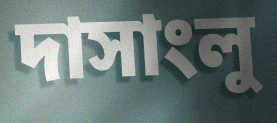
দাসাংলু